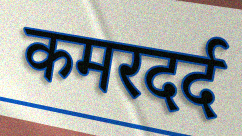
कमरदर्द